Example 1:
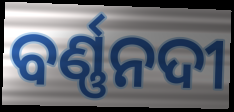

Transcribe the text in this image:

ବର୍ଣ୍ଣନଦୀ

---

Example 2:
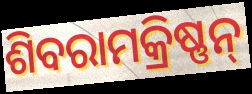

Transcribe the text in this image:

ଶିବରାମକ୍ରିଷ୍ଣନ୍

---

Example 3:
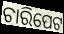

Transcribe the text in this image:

ଚାରିପେଟ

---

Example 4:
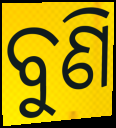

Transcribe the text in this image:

ବୁଣି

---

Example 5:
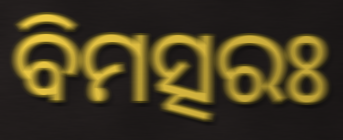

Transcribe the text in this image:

ବିମତ୍ସରଃ